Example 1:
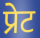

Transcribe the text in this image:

प्रेट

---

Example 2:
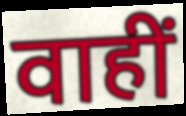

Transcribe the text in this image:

वाहीं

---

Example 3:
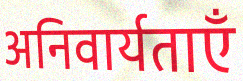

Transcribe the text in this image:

अनिवार्यताएँ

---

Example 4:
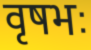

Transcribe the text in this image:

वृषभः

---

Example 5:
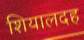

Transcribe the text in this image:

शियालदह